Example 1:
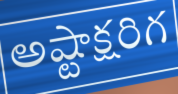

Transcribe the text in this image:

అష్టాక్షరిగ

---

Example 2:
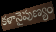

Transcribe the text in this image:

కళానైపుణ్యం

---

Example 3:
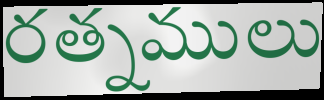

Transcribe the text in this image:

రత్నములు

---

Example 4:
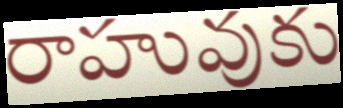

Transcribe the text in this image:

రాహువుకు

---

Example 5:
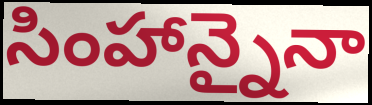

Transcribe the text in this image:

సింహాన్నైనా